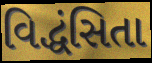
વિદ્ધંસિતા